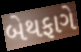
બેથફાગે